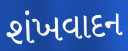
શંખવાદન